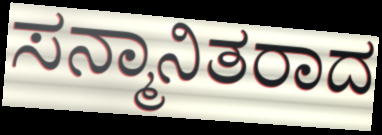
ಸನ್ಮಾನಿತರಾದ